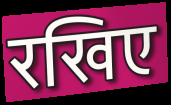
रखिए